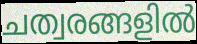
ചത്വരങ്ങളിൽ